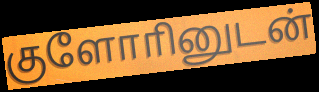
குளோரினுடன்